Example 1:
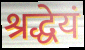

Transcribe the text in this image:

श्रद्धेयं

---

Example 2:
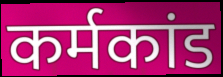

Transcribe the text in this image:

कर्मकांड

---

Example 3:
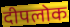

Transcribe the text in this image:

दीपलोक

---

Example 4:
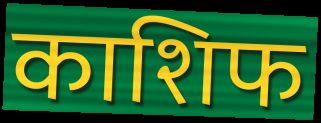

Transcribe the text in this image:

काशिफ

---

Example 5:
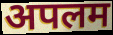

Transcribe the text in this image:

अपलम